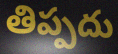
తిప్పదు